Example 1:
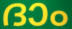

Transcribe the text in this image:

ദാം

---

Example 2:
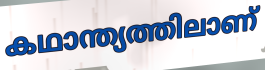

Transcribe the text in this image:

കഥാന്ത്യത്തിലാണ്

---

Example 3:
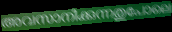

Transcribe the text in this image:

അവസാനിക്കുന്നതുപോലെ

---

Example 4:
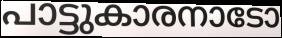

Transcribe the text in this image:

പാട്ടുകാരനാടോ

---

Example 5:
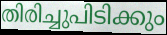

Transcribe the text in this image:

തിരിച്ചുപിടിക്കും